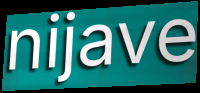
nijave